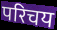
परिचय